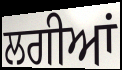
ਲਗੀਆਂ